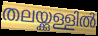
തലയ്ക്കുള്ളിൽ